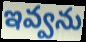
ఇవ్వను